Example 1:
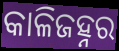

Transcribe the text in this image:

କାଳିଜହ୍ନର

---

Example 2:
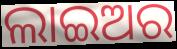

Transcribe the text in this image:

ଲାଇଅର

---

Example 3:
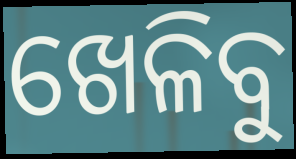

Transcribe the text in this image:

ଖେଳିବୁ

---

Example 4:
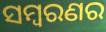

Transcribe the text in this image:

ସମ୍ବରଣର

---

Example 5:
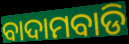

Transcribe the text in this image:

ବାଦାମବାଡି